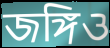
জঙ্গিও